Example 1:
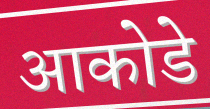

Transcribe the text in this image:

आकोडे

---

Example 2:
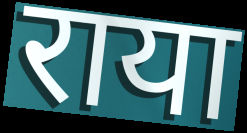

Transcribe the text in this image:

राया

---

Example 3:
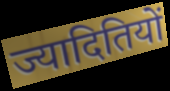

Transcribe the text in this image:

ज्यादितियों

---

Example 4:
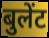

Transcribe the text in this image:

बुलेंट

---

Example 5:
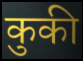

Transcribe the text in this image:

कुकी